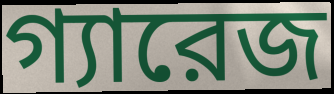
গ্যারেজ